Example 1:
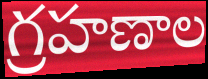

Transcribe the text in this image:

గ్రహణాల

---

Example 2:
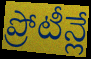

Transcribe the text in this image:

ప్రోటీన్లే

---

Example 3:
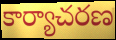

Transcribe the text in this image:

కార్యాచరణ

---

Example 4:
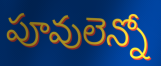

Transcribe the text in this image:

పూవులెన్నో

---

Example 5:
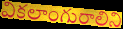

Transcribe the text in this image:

వికలాంగురాలిని